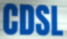
CDSL